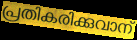
പ്രതികരിക്കുവാന്